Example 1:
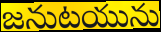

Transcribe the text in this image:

జనుటయును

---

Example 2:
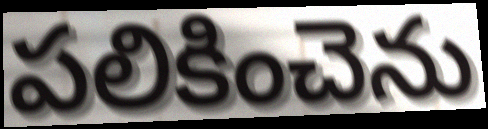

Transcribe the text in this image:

పలికించెను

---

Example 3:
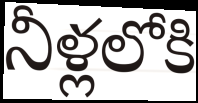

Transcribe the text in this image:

నీళ్లలోకి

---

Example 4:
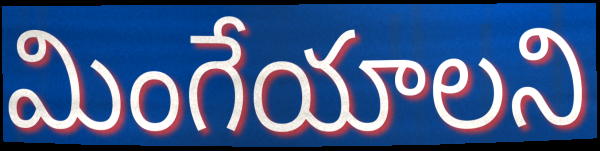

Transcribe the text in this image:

మింగేయాలని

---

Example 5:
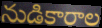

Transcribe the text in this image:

నుడికారాల